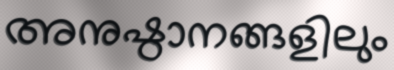
അനുഷ്ഠാനങ്ങളിലും